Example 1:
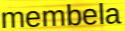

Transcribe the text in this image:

membela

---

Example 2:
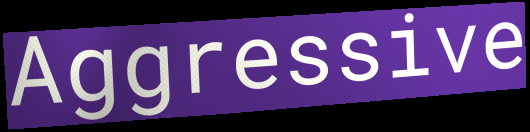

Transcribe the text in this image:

Aggressive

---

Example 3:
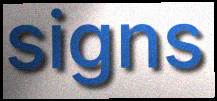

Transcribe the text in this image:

signs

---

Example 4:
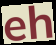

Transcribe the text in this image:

eh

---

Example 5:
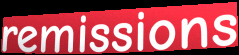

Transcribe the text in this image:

remissions